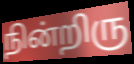
நின்றிரு